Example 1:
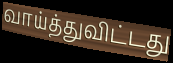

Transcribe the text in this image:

வாய்த்துவிட்டது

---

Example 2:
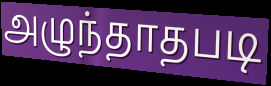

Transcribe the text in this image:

அழுந்தாதபடி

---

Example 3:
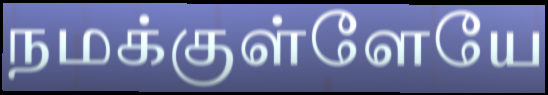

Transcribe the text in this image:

நமக்குள்ளேயே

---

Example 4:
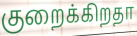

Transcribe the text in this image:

குறைக்கிறதா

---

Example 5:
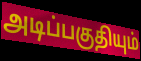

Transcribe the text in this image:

அடிப்பகுதியும்